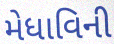
મેધાવિની